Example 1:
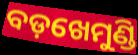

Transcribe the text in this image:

ବଡ଼ଖେମୁଣ୍ଡି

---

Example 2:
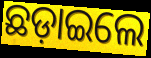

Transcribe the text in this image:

ଛଡ଼ାଇଲେ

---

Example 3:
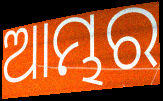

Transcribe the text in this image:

ଆମ୍ଭର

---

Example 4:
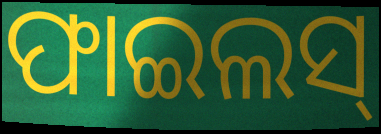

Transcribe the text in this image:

ଫାଇଲସ୍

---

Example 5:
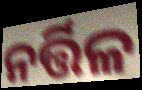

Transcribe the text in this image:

ନର୍ତ୍ତିଳ